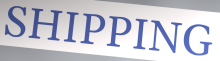
SHIPPING